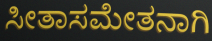
ಸೀತಾಸಮೇತನಾಗಿ